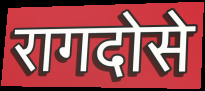
रागदोसे